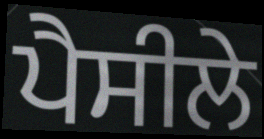
ਪੈਸੀਲੇ